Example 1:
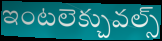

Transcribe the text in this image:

ఇంటలెక్చువల్స్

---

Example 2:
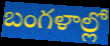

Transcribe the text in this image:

బంగళాల్లో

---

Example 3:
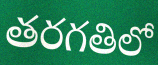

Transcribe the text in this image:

తరగతిలో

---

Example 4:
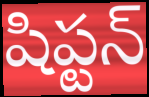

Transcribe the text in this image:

షిప్టన్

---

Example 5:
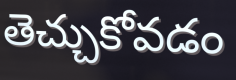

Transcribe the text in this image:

తెచ్చుకోవడం